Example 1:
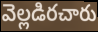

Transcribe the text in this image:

వెల్లడిరచారు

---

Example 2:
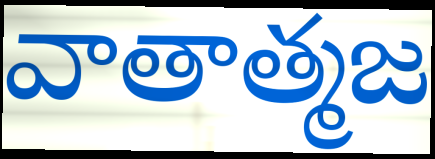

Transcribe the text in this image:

వాతాత్మజ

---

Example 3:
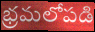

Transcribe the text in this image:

భ్రమలోపడి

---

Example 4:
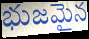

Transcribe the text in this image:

భుజమైన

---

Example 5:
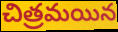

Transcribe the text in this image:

చిత్రమయిన